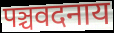
पञ्चवदनाय